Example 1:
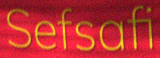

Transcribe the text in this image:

Sefsafi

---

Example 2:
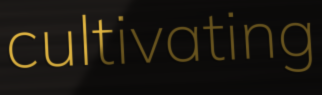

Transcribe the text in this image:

cultivating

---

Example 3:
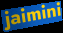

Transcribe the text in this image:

jaimini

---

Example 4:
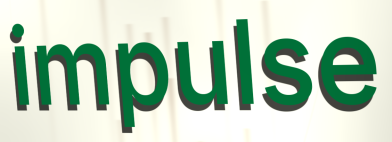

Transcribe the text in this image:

impulse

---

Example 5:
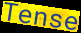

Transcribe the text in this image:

Tense